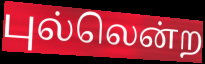
புல்லென்ற